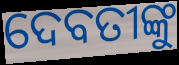
ଦେବତୀଙ୍କୁ